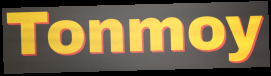
Tonmoy